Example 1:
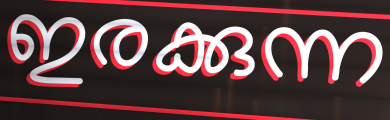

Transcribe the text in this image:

ഇരക്കുന്ന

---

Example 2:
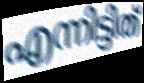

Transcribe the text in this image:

എന്നിട്ടിത്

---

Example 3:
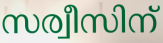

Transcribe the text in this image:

സര്വീസിന്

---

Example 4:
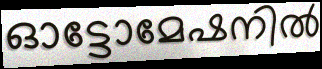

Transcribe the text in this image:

ഓട്ടോമേഷനിൽ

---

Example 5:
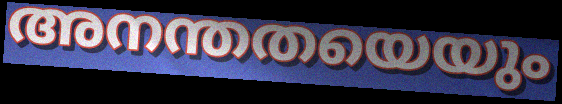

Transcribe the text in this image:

അനന്തതയെയും